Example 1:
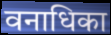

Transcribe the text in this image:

वनाधिका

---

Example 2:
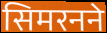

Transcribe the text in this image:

सिमरनने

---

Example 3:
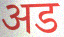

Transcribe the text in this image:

अड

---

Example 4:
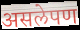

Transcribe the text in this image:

असलेपण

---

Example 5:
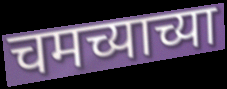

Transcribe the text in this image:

चमच्याच्या